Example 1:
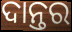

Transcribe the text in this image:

ଦାନ୍ତର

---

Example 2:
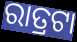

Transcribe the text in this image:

ରାତ୍ରଟା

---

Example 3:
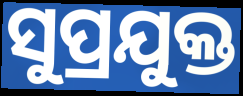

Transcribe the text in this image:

ସୁପ୍ରଯୁକ୍ତ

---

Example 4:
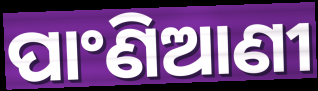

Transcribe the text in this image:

ପାଂଣିଆଣୀ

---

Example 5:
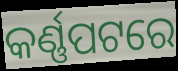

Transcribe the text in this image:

କର୍ଣ୍ଣପଟରେ